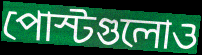
পোস্টগুলোও